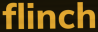
flinch